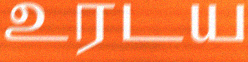
உரடய